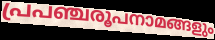
പ്രപഞ്ചരൂപനാമങ്ങളും